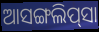
ଆସଙ୍ଗଲିପ୍‌ସା